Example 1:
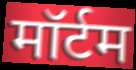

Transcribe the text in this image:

मॉर्टम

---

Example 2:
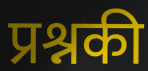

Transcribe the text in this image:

प्रश्नकी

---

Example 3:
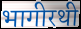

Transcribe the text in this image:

भागीरथी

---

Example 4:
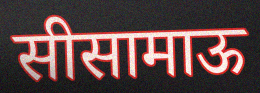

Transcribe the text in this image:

सीसामाऊ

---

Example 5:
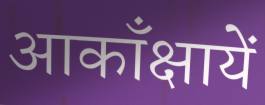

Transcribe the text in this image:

आकाँक्षायें